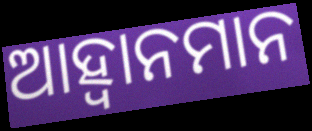
ଆହ୍ୱାନମାନ